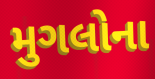
મુગલોના